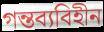
গন্তব্যবিহীন